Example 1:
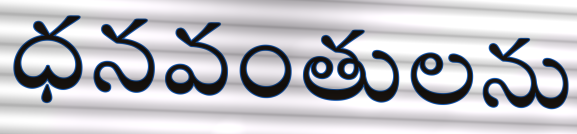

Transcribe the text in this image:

ధనవంతులను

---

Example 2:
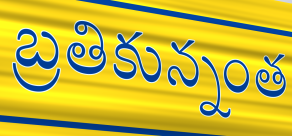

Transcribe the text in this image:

బ్రతికున్నంత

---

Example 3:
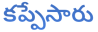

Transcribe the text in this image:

కప్పేసారు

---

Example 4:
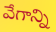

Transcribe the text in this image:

వేగాన్ని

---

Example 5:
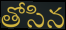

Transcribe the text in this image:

తోసిన